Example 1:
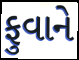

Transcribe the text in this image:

ફુવાને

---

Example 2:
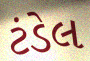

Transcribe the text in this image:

ટંડેલ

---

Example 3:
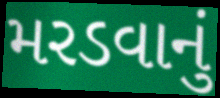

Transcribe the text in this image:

મરડવાનું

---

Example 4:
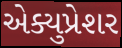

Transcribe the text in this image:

એક્યુપ્રેશર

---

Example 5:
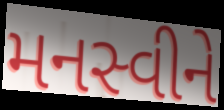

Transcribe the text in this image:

મનસ્વીને